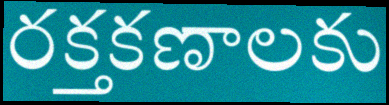
రక్తకణాలకు